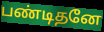
பண்டிதனே